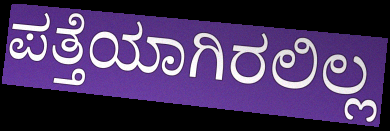
ಪತ್ತೆಯಾಗಿರಲಿಲ್ಲ